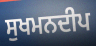
ਸੁਖਮਨਦੀਪ